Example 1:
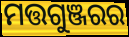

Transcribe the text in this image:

ମତ୍ତଗୁଞ୍ଜରର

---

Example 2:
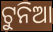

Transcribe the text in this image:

ଟୁନିଆ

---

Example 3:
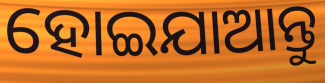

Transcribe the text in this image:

ହୋଇଯାଆନ୍ତୁ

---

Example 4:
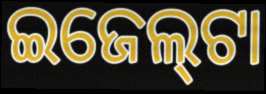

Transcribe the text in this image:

ଇଜେଲ୍‍ଟା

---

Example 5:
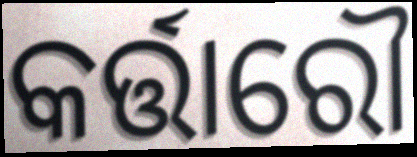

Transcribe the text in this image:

କର୍ତ୍ତାରୌ